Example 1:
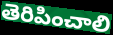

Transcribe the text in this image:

తెరిపించాలి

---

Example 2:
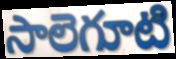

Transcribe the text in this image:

సాలెగూటి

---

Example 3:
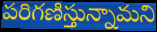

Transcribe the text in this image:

పరిగణిస్తున్నామని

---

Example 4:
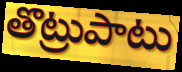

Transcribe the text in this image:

తొట్రుపాటు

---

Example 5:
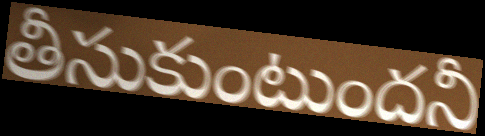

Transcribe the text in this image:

తీసుకుంటుందనీ